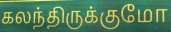
கலந்திருக்குமோ